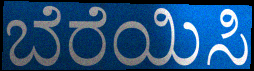
ಬೆರೆಯಿಸಿ